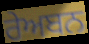
ਰੇਅਬਨ